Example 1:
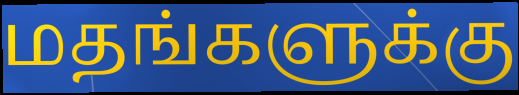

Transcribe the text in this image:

மதங்களுக்கு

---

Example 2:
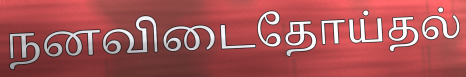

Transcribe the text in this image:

நனவிடைதோய்தல்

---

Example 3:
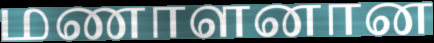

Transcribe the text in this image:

மணாளனான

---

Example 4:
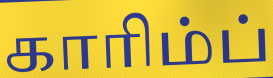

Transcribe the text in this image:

காரிம்ப்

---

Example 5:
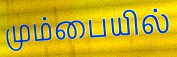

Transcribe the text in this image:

மும்பையில்